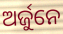
ଅର୍ଜୁନେ